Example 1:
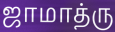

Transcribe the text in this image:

ஜாமாத்ரு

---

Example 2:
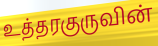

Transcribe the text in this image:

உத்தரகுருவின்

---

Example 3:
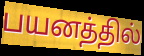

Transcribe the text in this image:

பயனத்தில்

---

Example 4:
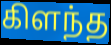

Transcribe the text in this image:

கிளந்த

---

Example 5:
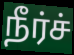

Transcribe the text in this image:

நீர்ச்